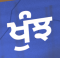
ਖੁੰਝ